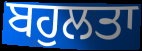
ਬਹੁਲਤਾ